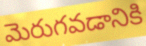
మెరుగవడానికి